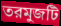
তরমুজটি